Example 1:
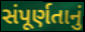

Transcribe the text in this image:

સંપૂર્ણતાનું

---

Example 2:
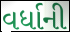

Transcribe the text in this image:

વર્ધાની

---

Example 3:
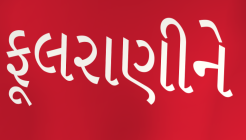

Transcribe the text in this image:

ફૂલરાણીને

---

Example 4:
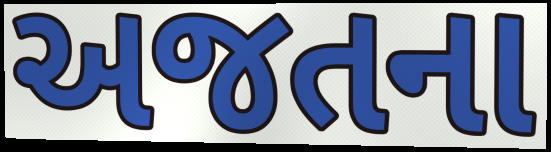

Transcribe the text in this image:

અજતના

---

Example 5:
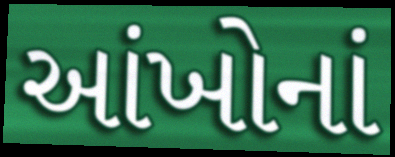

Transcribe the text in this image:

આંખોનાં